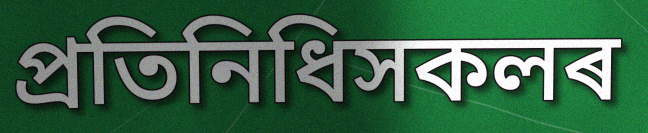
প্ৰতিনিধিসকলৰ